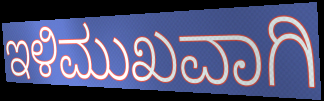
ಇಳಿಮುಖವಾಗಿ